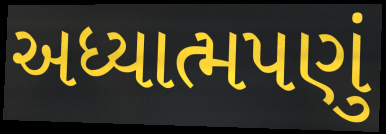
અધ્યાત્મપણું